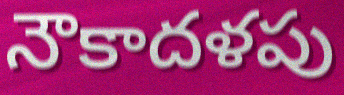
నౌకాదళపు